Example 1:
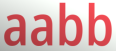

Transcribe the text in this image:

aabb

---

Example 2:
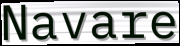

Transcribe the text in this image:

Navare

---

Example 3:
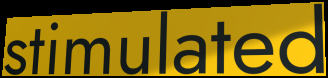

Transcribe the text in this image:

stimulated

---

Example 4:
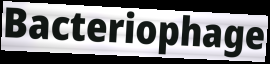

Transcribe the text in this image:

Bacteriophage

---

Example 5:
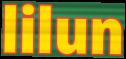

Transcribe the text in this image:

lilun